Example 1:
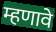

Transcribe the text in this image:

म्हणावे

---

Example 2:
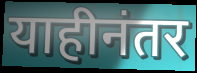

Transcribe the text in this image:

याहीनंतर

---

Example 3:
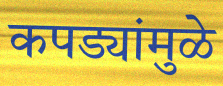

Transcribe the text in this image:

कपड्यांमुळे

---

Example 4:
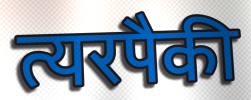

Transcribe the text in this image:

त्यरपैकी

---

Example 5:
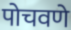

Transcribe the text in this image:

पोचवणे